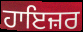
ਹਾਇਜ਼ਰ